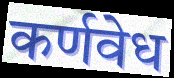
कर्णवेध